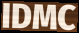
IDMC